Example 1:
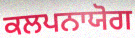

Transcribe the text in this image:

ਕਲਪਨਾਯੋਗ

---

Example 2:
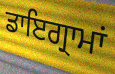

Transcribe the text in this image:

ਡਾਇਗ੍ਰਾਮਾਂ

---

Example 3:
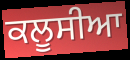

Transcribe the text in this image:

ਕਲੂਸੀਆ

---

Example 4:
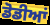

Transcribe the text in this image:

ਡੋਡੀਆਂ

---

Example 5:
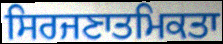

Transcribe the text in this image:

ਸਿਰਜਣਾਤਮਿਕਤਾ